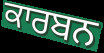
ਕਾਰਬਨ